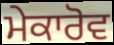
ਮੇਕਾਰੋਵ